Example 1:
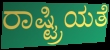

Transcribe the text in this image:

ರಾಷ್ಟ್ರಿಯತೆ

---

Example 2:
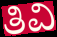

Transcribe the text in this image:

ತಿವಿ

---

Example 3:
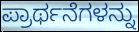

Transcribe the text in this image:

ಪ್ರಾರ್ಥನೆಗಳನ್ನು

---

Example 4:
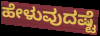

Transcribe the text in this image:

ಹೇಳುವುದಷ್ಟೆ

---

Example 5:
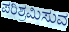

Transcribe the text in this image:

ಪರಿಶ್ರಮಿಸುವ